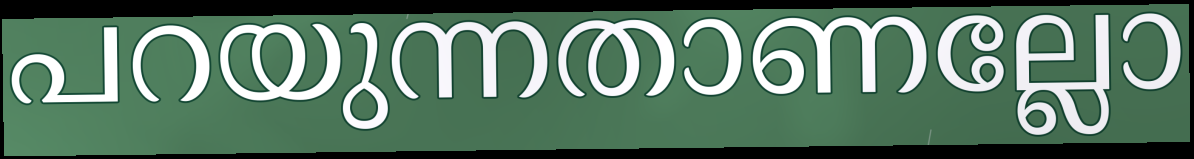
പറയുന്നതാണല്ലോ